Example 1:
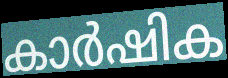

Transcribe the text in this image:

കാർഷിക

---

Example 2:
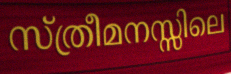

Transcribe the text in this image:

സ്ത്രീമനസ്സിലെ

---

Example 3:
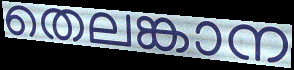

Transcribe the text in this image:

തെലങ്കാന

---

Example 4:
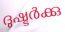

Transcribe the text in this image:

ദുഷ്ടർക്കു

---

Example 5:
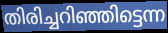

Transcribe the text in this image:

തിരിച്ചറിഞ്ഞിട്ടെന്ന